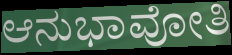
ಆನುಭಾವೋತಿ